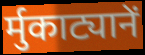
र्मुकाट्यानें